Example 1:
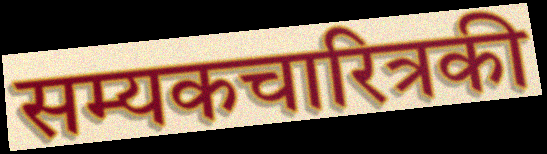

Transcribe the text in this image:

सम्यकचारित्रकी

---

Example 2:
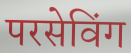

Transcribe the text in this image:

परसेविंग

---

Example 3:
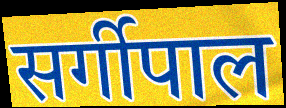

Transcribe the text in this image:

सर्गीपाल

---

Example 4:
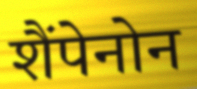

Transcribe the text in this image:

शैंपेनोन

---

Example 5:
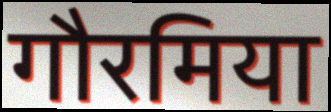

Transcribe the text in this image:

गौरमिया